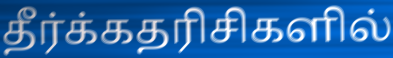
தீர்க்கதரிசிகளில்